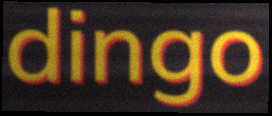
dingo